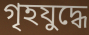
গৃহযুদ্ধে